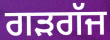
ਗਡ਼ਗੱਜ